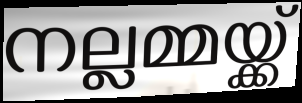
നല്ലമ്മയ്ക്ക്